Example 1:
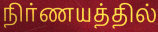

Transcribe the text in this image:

நிர்ணயத்தில்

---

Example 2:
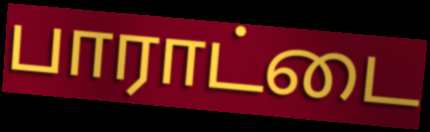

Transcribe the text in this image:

பாராட்டை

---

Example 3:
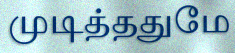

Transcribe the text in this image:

முடித்ததுமே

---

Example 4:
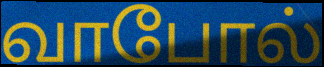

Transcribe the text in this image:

வாபோல்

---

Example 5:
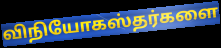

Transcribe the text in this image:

விநியோகஸ்தர்களை